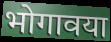
भोगावया